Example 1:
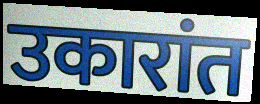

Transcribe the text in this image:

उकारांत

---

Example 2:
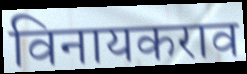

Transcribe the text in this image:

विनायकराव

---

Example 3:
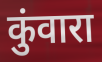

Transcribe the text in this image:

कुंवारा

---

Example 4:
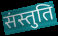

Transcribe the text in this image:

संस्तुति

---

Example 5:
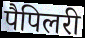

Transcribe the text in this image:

पैपिलरी